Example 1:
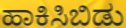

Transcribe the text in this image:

ಹಾಕಿಸಿಬಿಡು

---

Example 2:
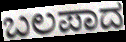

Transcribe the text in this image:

ಬಲಪಾದ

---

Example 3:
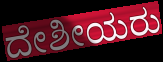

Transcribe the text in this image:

ದೇಶೀಯರು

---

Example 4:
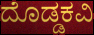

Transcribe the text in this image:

ದೊಡ್ಡಕವಿ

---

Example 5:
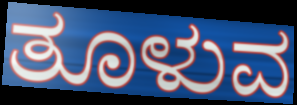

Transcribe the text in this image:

ತೂಳುವ